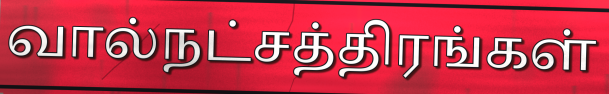
வால்நட்சத்திரங்கள்